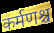
कर्मणश्च